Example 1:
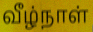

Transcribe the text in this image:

வீழ்நாள்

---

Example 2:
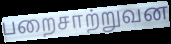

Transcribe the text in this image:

பறைசாற்றுவன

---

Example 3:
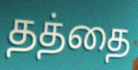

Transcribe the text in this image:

தத்தை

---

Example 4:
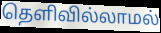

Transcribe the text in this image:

தெளிவில்லாமல்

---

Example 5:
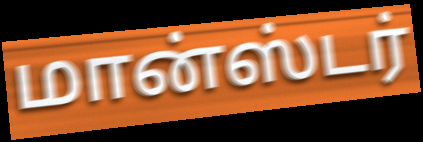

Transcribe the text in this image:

மான்ஸ்டர்